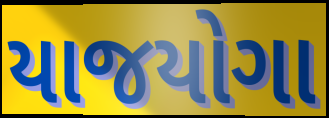
યાજયોગા